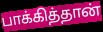
பாக்கித்தான்